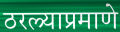
ठरल्याप्रमाणे